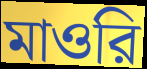
মাওরি